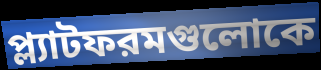
প্ল্যাটফরমগুলোকে